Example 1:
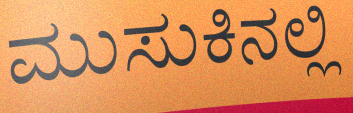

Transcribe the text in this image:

ಮುಸುಕಿನಲ್ಲಿ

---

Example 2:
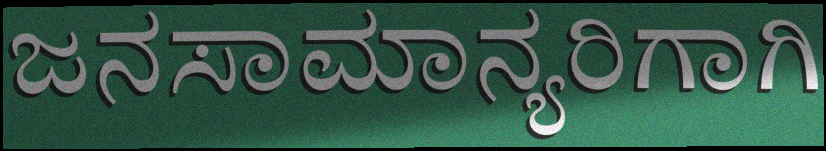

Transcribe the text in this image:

ಜನಸಾಮಾನ್ಯರಿಗಾಗಿ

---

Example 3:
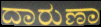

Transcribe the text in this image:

ದಾರುಣಾ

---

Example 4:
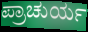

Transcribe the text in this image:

ಪ್ರಾಚುರ್ಯ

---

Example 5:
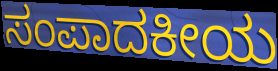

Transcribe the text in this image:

ಸಂಪಾದಕೀಯ